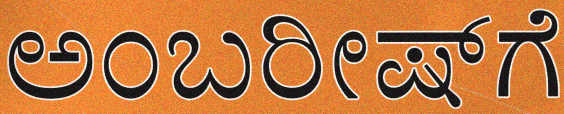
ಅಂಬರೀಷ್‌ಗೆ